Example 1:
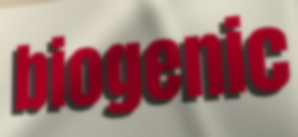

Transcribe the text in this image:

biogenic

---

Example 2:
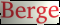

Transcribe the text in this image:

Berge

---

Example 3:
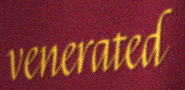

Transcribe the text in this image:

venerated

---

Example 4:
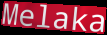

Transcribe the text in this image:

Melaka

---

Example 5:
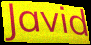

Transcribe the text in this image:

Javid